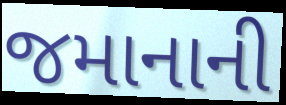
જમાનાની